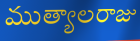
ముత్యాలరాజు